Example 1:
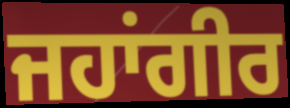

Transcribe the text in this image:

ਜਹਾਂਗੀਰ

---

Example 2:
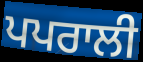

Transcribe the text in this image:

ਪਪਰਾਲੀ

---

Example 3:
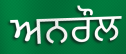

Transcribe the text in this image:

ਅਨਰੌਲ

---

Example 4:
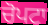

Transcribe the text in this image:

ਚੋਪਟਾ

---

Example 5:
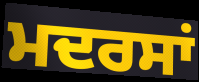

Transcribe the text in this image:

ਮਦਰਸਾਂ